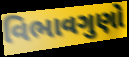
વિભાવગુણો